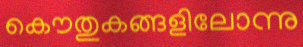
കൌതുകങ്ങളിലോന്നു